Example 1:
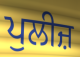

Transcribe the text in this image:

ਪੁਲੀਜ਼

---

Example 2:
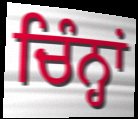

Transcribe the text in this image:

ਚਿੰਨ੍ਹਾਂ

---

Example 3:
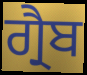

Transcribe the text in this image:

ਗ੍ਰੈਬ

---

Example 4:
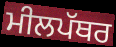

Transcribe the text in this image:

ਮੀਲਪੱਥਰ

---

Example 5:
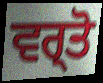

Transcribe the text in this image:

ਵਰ੍ਤੋ